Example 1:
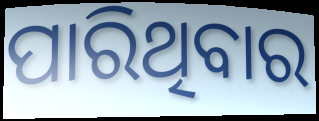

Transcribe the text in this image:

ପାରିଥିବାର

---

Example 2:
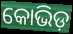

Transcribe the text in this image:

କୋଭିଡ଼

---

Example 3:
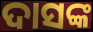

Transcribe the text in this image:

ଦାସଙ୍କ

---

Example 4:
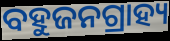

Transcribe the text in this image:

ବହୁଜନଗ୍ରାହ୍ୟ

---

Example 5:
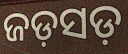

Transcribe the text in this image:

ଜଡ଼ସଡ଼